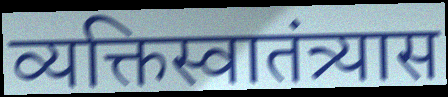
व्यक्तिस्वातंत्र्यास